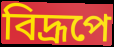
বিদ্রূপে